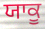
ਯਾਕੂ